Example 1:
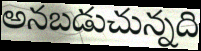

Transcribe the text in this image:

అనబడుచున్నది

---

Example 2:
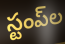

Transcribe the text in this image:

స్టంప్‌ల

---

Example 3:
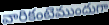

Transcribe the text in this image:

వారికంటెముందుగా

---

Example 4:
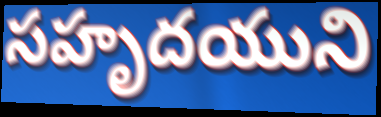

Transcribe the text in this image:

సహృదయుని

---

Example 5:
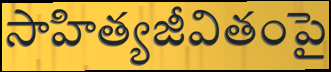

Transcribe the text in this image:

సాహిత్యజీవితంపై